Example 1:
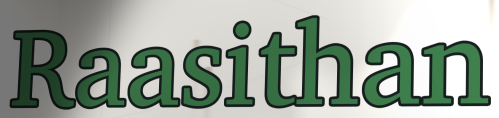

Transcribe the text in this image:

Raasithan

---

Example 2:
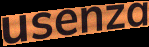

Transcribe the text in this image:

usenza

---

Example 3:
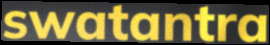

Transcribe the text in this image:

swatantra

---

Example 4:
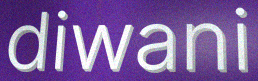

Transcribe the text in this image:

diwani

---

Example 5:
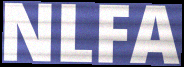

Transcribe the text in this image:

NLFA